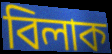
বিলাক